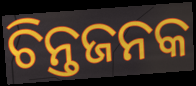
ଚିନ୍ତଜନକ